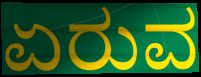
ಏರುವ